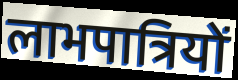
लाभपात्रियों